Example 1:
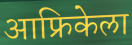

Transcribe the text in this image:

आफ्रिकेला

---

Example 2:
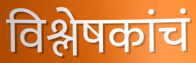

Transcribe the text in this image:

विश्लेषकांचं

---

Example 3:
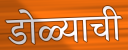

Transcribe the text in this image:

डोळ्याची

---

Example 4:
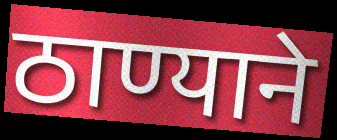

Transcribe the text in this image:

ठाण्याने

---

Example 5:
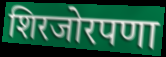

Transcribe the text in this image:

शिरजोरपणा